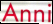
Anni